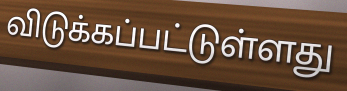
விடுக்கப்பட்டுள்ளது